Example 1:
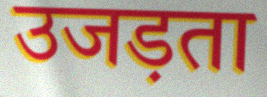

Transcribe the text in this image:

उजड़ता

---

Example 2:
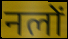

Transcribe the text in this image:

नलों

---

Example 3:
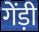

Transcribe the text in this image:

गेंड़ी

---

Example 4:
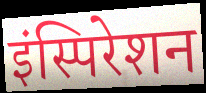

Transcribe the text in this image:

इंस्पिरेशन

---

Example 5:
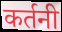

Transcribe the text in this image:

कर्तनी